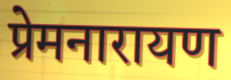
प्रेमनारायण